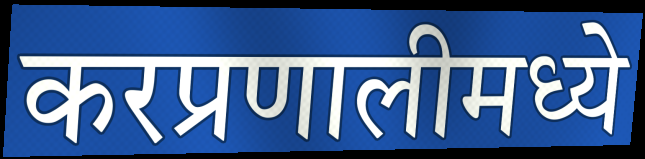
करप्रणालीमध्ये